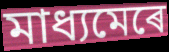
মাধ্যমেৰে